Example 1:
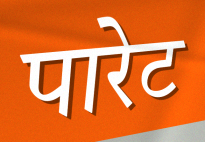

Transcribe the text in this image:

पारेट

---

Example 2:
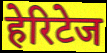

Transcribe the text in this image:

हेरिटेज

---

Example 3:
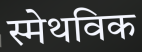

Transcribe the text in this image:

स्मेथविक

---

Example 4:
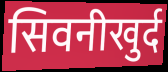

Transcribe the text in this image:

सिवनीखुर्द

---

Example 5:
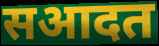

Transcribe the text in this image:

सआदत